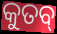
କୁତବ୍